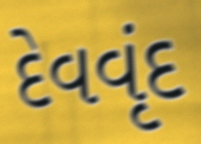
દેવવૃંદ